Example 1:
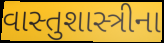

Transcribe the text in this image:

વાસ્તુશાસ્ત્રીના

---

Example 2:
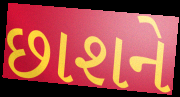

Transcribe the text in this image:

છાશને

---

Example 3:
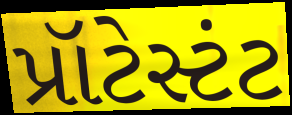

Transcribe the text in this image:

પ્રૉટેસ્ટંટ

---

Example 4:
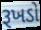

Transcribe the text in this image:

રૂખડો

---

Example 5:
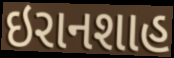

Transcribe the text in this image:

ઇરાનશાહ